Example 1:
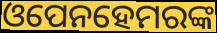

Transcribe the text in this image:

ଓପେନହେମରଙ୍କ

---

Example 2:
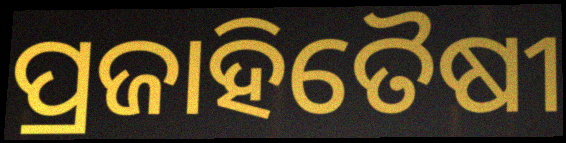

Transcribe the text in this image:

ପ୍ରଜାହିତୈଷୀ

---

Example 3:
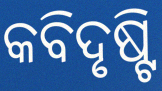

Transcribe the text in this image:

କବିଦୃଷ୍ଟି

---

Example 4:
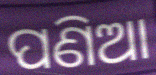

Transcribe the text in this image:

ପଣିଆ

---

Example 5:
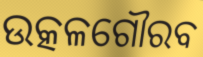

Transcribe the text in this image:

ଉତ୍କଳଗୌରବ